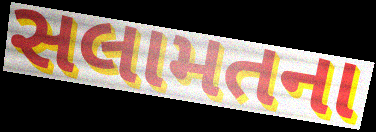
સલામતના